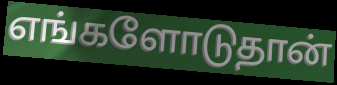
எங்களோடுதான்